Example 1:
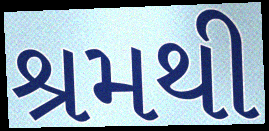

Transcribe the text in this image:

શ્રમથી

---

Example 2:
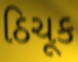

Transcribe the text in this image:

ઠિચૂક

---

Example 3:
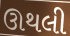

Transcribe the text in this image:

ઊથલી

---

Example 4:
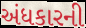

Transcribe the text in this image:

અંધકારની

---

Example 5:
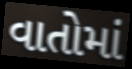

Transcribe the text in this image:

વાતોમાં